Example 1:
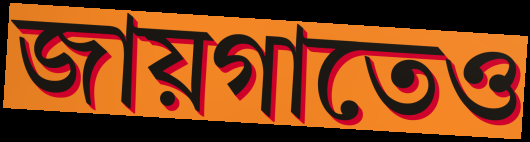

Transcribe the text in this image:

জায়গাতেও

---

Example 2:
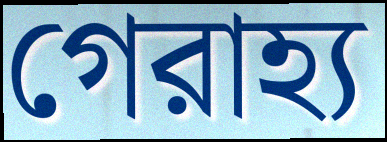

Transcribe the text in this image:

গেরাহ্য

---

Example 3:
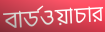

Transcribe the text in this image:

বার্ডওয়াচার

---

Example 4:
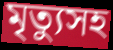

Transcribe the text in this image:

মৃত্যুসহ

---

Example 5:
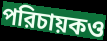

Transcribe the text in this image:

পরিচায়কও